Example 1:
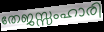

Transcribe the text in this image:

തേജസ്സംഹാരി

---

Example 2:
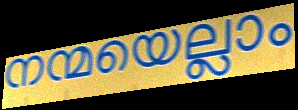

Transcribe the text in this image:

നന്മയെല്ലാം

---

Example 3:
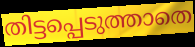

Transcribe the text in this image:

തിട്ടപ്പെടുത്താതെ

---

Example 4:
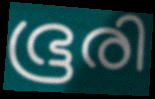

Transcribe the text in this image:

ഭൂരി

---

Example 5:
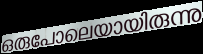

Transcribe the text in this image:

ഒരുപോലെയായിരുന്നു